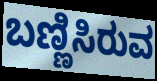
ಬಣ್ಣಿಸಿರುವ